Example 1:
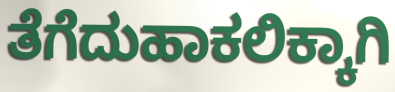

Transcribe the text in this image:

ತೆಗೆದುಹಾಕಲಿಕ್ಕಾಗಿ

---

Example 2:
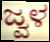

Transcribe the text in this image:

ಜ್ವಳ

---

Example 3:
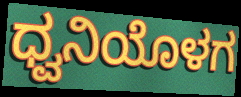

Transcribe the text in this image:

ಧ್ವನಿಯೊಳಗ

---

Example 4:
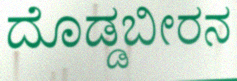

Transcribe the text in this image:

ದೊಡ್ಡಬೀರನ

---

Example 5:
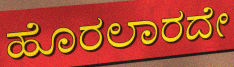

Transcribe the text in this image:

ಹೊರಲಾರದೇ